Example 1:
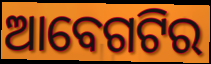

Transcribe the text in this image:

ଆବେଗଟିର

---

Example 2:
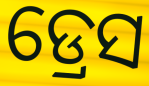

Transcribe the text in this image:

ଡ୍ରେସ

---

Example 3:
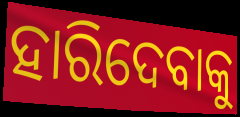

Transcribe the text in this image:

ହାରିଦେବାକୁ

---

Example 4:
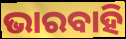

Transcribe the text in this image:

ଭାରବାହି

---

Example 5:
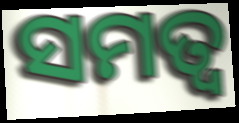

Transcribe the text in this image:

ସମତ୍ଵ